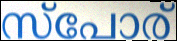
സ്പോര്